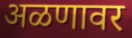
अळणावर